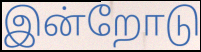
இன்றோடு